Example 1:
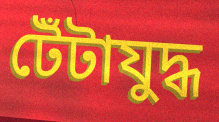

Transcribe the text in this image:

টেঁটাযুদ্ধ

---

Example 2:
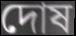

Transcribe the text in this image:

দোষ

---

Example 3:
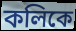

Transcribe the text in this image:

কলিকে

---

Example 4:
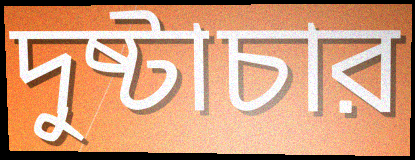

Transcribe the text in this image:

দুষ্টাচার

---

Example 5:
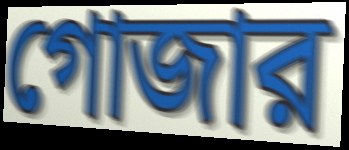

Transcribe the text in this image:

গোজার